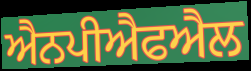
ਐਨਪੀਐਫਐਲ